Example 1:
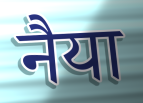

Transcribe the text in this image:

नैया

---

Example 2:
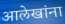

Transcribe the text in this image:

आलेखांना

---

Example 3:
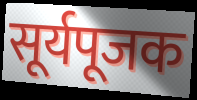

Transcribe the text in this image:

सूर्यपूजक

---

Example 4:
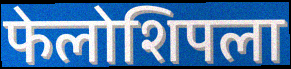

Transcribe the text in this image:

फेलोशिपला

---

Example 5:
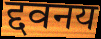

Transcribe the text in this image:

द्दवनय